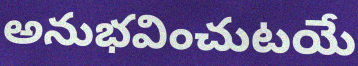
అనుభవించుటయే